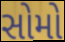
સોમો